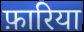
फ़ारिया